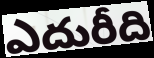
ఎదురీది